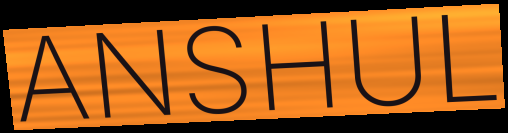
ANSHUL